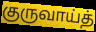
குருவாய்த்